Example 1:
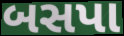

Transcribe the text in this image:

બસપા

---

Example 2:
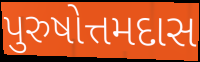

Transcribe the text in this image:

પુરુષોત્તમદાસ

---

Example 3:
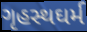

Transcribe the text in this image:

ગૃહસ્થઘર્મ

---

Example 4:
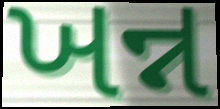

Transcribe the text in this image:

ખન્ન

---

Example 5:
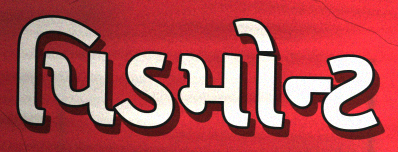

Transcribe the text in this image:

પિડમોન્ટ